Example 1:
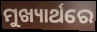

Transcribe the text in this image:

ମୁଖ୍ୟାର୍ଥରେ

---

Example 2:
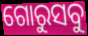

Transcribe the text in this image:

ଗୋରୁସବୁ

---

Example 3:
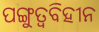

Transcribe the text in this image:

ପଙ୍ଗୁତ୍ୱବିହୀନ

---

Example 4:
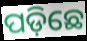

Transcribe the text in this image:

ପଡ଼ିଛେ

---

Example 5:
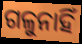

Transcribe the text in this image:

ଗଳୁନାହିଁ